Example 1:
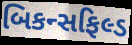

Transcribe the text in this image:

બિકન્સફિલ્ડ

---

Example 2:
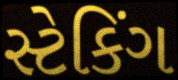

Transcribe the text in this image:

સ્ટેકિંગ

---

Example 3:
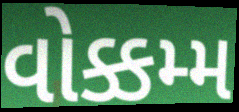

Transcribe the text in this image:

વોક્કમ્મ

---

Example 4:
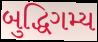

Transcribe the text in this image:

બુદ્ધિગમ્ય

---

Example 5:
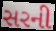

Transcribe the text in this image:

સરની